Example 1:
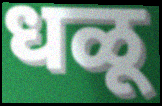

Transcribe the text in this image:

धळू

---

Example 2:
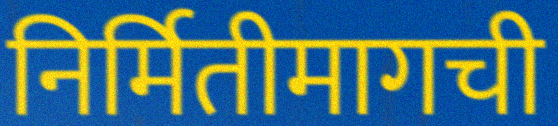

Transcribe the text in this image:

निर्मितीमागची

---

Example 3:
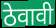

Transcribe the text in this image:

ठेवावी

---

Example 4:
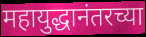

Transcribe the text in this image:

महायुद्धानंतरच्या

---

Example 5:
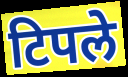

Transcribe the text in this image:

टिपले